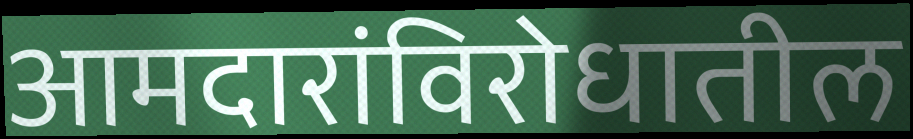
आमदारांविरोधातील